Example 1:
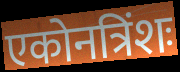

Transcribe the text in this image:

एकोनत्रिंशः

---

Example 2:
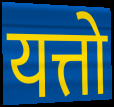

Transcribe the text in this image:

यत्तो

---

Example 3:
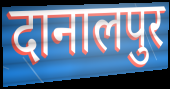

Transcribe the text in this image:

दानालपुर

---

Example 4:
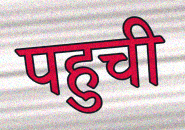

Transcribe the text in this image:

पहुची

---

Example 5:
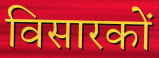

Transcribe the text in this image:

विसारकों